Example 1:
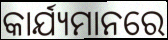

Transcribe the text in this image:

କାର୍ଯ୍ୟମାନରେ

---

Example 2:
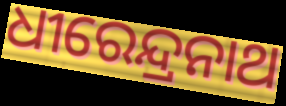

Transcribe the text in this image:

ଧୀରେନ୍ଦ୍ରନାଥ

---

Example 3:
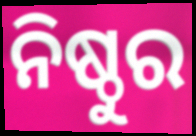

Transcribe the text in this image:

ନିଷ୍ଠୁର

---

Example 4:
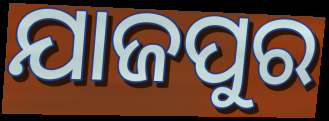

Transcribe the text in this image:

ଯାଜପୁର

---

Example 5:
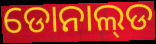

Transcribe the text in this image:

ଡୋନାଲ୍‌ଡ